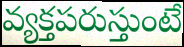
వ్యక్తపరుస్తుంటే